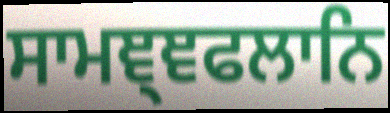
ਸਾਮਞ੍ਞਫਲਾਨਿ